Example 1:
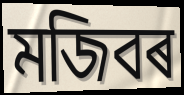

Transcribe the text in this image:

মজিবৰ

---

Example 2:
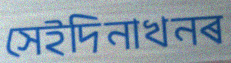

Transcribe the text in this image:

সেইদিনাখনৰ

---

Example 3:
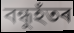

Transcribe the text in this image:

বন্ধুহঁতৰ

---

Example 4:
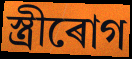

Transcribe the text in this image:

স্ত্ৰীৰোগ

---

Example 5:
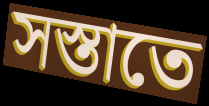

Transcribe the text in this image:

সস্তাতে